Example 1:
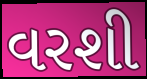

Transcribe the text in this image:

વરશી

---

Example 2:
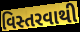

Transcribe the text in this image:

વિસ્તરવાથી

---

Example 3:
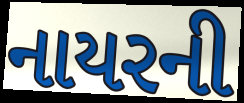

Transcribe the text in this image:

નાયરની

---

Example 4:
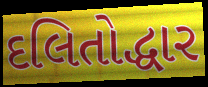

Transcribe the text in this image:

દલિતોદ્ધાર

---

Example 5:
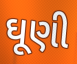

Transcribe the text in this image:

ઘૂણી